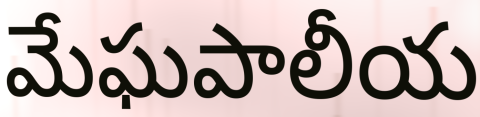
మేఘపాలీయ